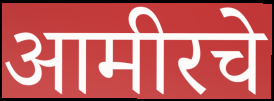
आमीरचे